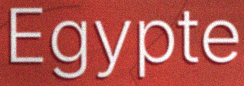
Egypte